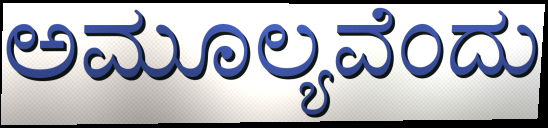
ಅಮೂಲ್ಯವೆಂದು